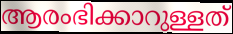
ആരംഭിക്കാറുള്ളത്